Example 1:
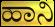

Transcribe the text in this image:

ಹಾನಿ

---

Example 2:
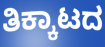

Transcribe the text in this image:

ತಿಕ್ಕಾಟದ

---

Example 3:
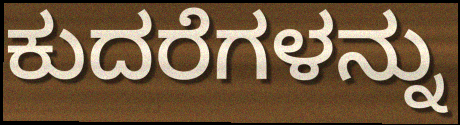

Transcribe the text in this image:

ಕುದರೆಗಳನ್ನು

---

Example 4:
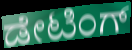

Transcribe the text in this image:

ಡೇಟಿಂಗ್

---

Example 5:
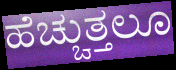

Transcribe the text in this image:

ಹೆಚ್ಚುತ್ತಲೂ